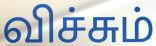
விச்சும்